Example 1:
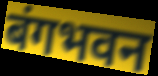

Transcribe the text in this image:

बंगभवन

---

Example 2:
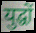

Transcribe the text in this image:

युद्धों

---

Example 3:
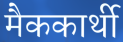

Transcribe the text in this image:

मैककार्थी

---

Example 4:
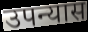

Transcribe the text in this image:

उपन्यास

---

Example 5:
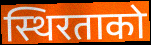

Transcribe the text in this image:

स्थिरताको